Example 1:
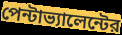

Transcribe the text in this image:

পেন্টাভ্যালেন্টের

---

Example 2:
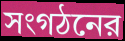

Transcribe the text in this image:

সংগঠনের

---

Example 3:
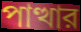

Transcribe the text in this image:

পাত্থার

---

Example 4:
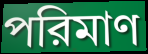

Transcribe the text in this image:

পরিমাণ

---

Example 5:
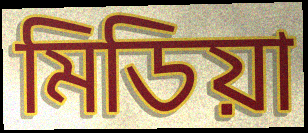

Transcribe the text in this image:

মিডিয়া